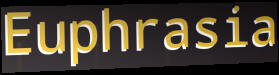
Euphrasia